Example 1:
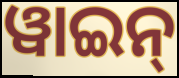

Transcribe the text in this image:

ୱାଇନ୍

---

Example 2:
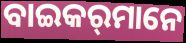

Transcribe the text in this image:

ବାଇକର୍‌ମାନେ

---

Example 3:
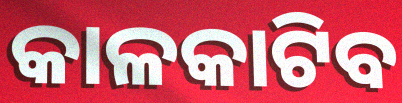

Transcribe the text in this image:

କାଳକାଟିବ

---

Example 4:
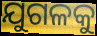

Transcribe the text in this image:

ଯୁଗଳକୁ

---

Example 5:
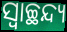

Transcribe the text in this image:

ସ୍ୱାଚ୍ଛନ୍ଦ୍ୟ